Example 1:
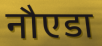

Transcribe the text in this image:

नौएडा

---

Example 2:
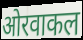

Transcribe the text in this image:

ओरवाकल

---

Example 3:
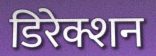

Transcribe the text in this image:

डिरेक्शन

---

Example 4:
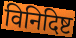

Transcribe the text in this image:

विनिदिष्ट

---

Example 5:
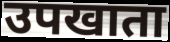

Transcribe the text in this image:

उपखाता